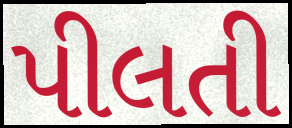
પીલતી